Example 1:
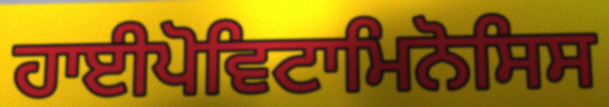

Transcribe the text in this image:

ਹਾਈਪੋਵਿਟਾਮਿਨੋਸਿਸ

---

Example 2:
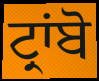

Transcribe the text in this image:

ਟ੍ਰਾਂਬੋ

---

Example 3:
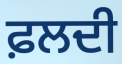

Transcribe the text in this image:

ਫ਼ਲਦੀ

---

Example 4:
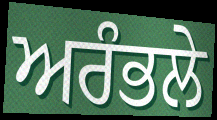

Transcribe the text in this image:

ਅਰੰਭਲੇ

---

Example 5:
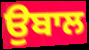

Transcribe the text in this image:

ਉਬਾਲ